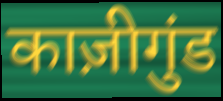
काज़ीगुंड